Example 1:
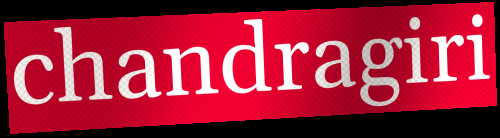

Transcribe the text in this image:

chandragiri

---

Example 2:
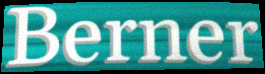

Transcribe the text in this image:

Berner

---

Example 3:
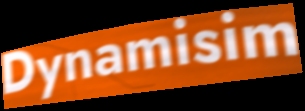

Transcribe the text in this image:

Dynamisim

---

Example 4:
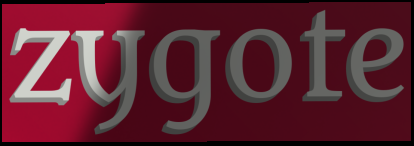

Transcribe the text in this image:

zygote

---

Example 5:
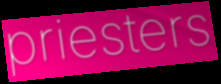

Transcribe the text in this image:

priesters